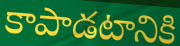
కాపాడటానికి